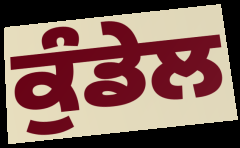
ਕੁੰਡੇਲ